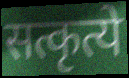
सत्कृत्ये